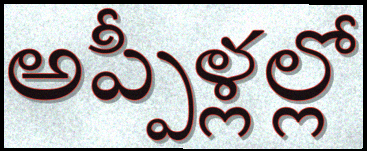
అప్పీళ్లల్లో